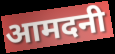
आमदनी